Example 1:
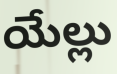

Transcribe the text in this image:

యేల్లు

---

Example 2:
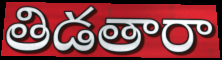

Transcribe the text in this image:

తిడతారా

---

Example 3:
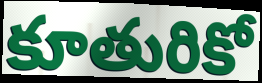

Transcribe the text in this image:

కూతురికో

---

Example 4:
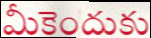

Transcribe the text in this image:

మీకెందుకు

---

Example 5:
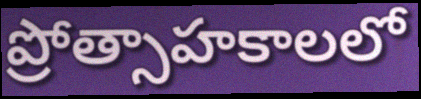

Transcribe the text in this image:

ప్రోత్సాహకాలలో